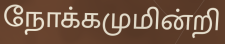
நோக்கமுமின்றி